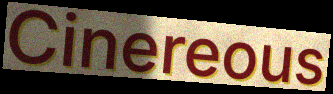
Cinereous